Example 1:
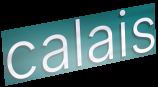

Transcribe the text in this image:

calais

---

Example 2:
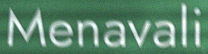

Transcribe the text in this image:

Menavali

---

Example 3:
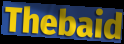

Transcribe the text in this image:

Thebaid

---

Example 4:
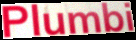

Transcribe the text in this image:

Plumbi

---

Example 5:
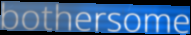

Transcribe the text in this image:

bothersome